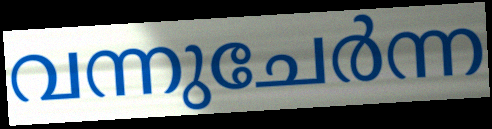
വന്നുചേർന്ന